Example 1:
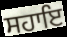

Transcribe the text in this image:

ਸਹਾਇ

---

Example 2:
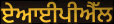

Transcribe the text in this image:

ਏਆਈਪੀਐੱਲ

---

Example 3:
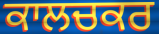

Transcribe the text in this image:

ਕਾਲਚਕਰ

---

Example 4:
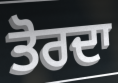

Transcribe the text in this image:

ਤੋਰਦਾ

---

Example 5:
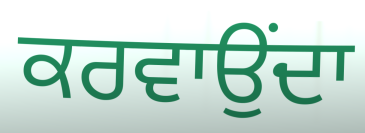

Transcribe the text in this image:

ਕਰਵਾਉਂਦਾ